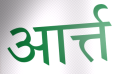
आर्त्त